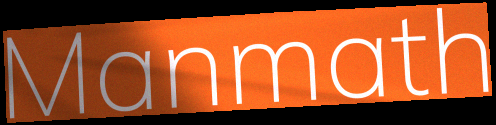
Manmath